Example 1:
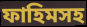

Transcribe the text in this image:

ফাহিমসহ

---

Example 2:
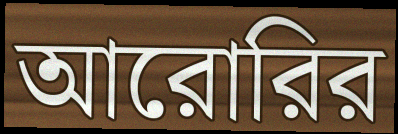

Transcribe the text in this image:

আরোরির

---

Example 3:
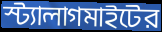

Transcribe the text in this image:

স্ট্যালাগমাইটের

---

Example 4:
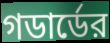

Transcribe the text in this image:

গডার্ডের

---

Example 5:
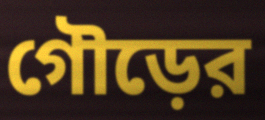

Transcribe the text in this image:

গৌড়ের